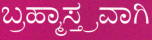
ಬ್ರಹ್ಮಾಸ್ತ್ರವಾಗಿ